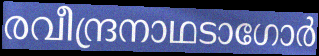
രവീന്ദ്രനാഥടാഗോർ